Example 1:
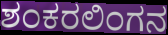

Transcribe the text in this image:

ಶಂಕರಲಿಂಗನ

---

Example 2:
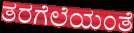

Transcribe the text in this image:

ತರಗೆಲೆಯಂತೆ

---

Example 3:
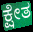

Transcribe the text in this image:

ಕ್ಷೇತ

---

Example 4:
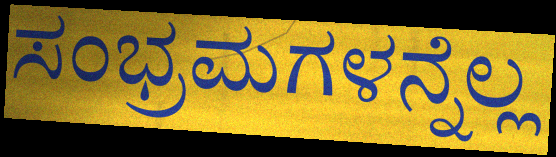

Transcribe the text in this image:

ಸಂಭ್ರಮಗಳನ್ನೆಲ್ಲ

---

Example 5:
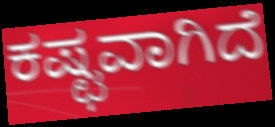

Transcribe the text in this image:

ಕಷ್ಟವಾಗಿದೆ